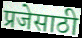
प्रजेसाठी